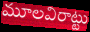
మూలవిరాట్టు